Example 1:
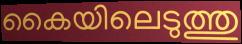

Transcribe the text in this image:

കൈയിലെടുത്തു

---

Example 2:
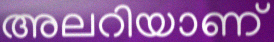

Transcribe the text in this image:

അലറിയാണ്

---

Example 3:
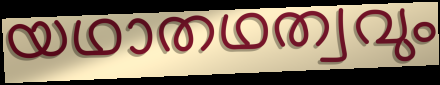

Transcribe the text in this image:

യഥാതഥത്വവും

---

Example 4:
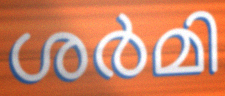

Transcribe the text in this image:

ശർമി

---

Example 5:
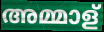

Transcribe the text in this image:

അമ്മാള്